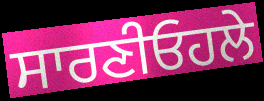
ਸਾਰਣੀਓਹਲੇ